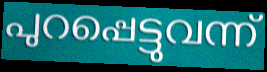
പുറപ്പെട്ടുവന്ന്